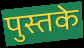
पुस्‍तके